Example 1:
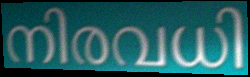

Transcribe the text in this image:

നിരവധി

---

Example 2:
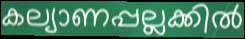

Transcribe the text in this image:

കല്യാണപ്പല്ലക്കിൽ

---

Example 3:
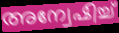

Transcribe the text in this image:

അന്വേഷിച്ച്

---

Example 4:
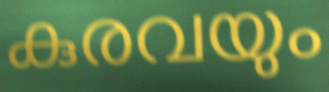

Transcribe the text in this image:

കുരവയും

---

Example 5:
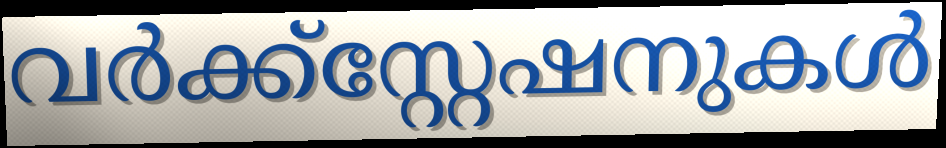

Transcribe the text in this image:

വർക്ക്സ്റ്റേഷനുകൾ